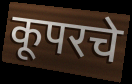
कूपरचे